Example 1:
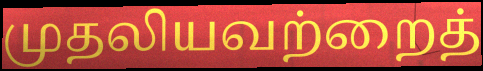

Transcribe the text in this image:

முதலியவற்றைத்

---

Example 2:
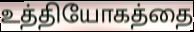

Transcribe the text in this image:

உத்தியோகத்தை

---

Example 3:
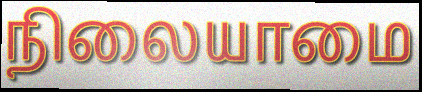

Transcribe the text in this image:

நிலையாமை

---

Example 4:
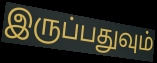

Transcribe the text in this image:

இருப்பதுவும்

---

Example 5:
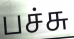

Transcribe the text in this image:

பச்சு